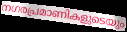
നഗരപ്രമാണികളുടെയും